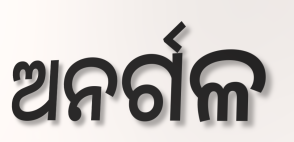
ଅନର୍ଗଳ